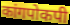
कांगपोकपी